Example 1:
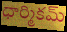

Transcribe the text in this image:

ధార్మికమ్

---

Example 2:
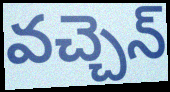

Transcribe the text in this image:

వచ్చెన్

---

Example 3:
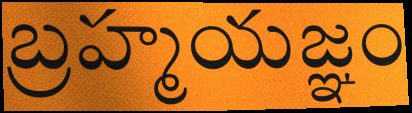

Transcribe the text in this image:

బ్రహ్మయజ్ఞం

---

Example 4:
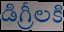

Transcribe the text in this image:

డిగ్రీలకి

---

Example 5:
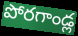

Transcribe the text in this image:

పోరగాండ్ల